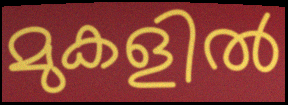
മുകളിൽ